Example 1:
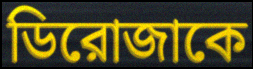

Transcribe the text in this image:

ডিরোজাকে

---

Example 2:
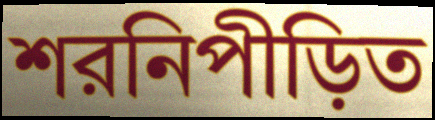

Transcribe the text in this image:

শরনিপীড়িত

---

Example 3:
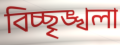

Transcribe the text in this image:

বিচ্ছৃঙ্খলা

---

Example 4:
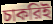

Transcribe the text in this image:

চাকরিই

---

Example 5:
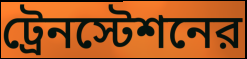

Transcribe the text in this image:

ট্রেনস্টেশনের